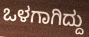
ಒಳಗಾಗಿದ್ದು